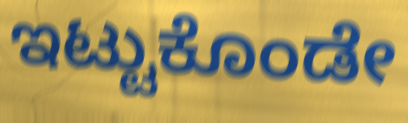
ಇಟ್ಟುಕೊಂಡೇ